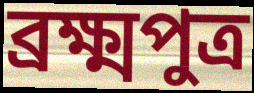
ব্ৰক্ষ্মপুত্ৰ